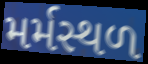
મર્મસ્થળ